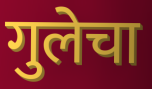
गुलेचा